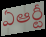
ఏఆర్టీ